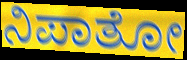
ನಿಪಾತೋ